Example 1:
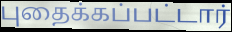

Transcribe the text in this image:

புதைக்கப்பட்டார்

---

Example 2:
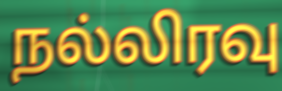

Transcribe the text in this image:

நல்லிரவு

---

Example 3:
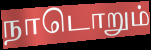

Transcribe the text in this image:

நாடொறும்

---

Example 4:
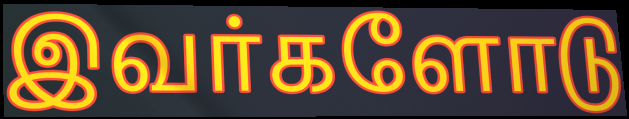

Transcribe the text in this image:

இவர்களோடு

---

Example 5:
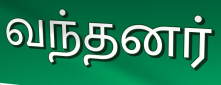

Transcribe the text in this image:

வந்தனர்